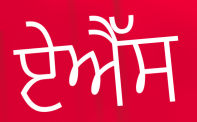
ਏਐੱਸ